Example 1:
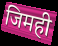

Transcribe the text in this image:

जिमही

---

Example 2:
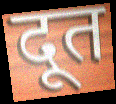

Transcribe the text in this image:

दूत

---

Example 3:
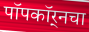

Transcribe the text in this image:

पॉपकॉर्नचा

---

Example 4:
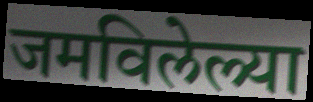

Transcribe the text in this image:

जमविलेल्या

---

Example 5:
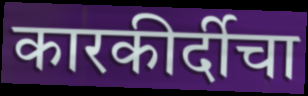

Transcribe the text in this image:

कारकीर्दीचा